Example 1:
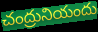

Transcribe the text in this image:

చంద్రునియందు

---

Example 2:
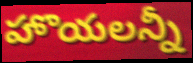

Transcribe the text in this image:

హొయలన్నీ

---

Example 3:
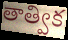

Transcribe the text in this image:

తాత్విక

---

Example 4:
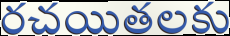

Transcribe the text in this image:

రచయితలకు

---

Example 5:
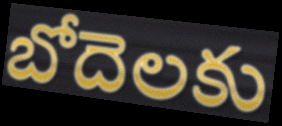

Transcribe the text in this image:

బోదెలకు